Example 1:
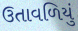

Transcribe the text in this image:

ઉતાવળિયું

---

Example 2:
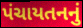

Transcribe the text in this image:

પંચાયતનનું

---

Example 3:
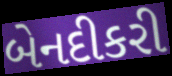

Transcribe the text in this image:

બેનદીકરી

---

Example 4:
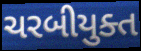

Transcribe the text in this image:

ચરબીયુક્ત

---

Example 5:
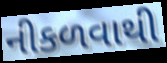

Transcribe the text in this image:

નીકળવાથી